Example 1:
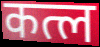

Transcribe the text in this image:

कत्ल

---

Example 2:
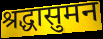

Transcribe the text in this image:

श्रद्धासुमन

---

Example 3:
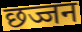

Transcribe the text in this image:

छज्जन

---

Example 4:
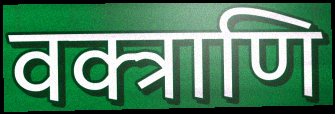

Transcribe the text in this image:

वक्त्राणि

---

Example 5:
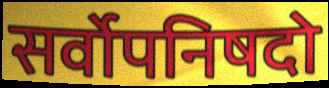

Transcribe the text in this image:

सर्वोपनिषदो